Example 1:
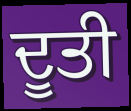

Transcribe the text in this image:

ਦੂਤੀ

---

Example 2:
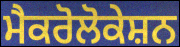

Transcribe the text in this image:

ਮੈਕਰੋਲੋਕੇਸ਼ਨ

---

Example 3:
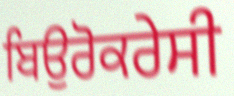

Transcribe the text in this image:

ਬਿਉਰੋਕਰੇਸੀ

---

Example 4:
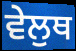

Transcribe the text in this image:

ਵੇਲੁਥ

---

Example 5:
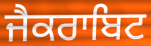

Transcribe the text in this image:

ਜੈਕਰਾਬਿਟ